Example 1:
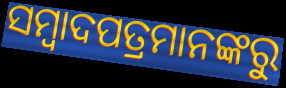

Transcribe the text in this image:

ସମ୍ୱାଦପତ୍ରମାନଙ୍କରୁ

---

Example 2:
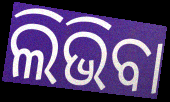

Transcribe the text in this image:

ଲିଭିବା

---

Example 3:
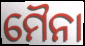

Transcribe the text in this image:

ମୈନା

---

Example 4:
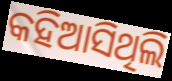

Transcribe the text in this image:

କହିଆସିଥିଲି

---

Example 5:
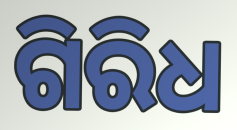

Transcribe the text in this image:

ଗିରିଧ